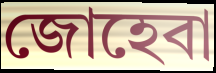
জোহেবা